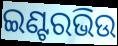
ଇଣ୍ଟରଭିଉ